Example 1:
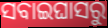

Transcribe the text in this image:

ସବାଇଘାସରୁ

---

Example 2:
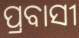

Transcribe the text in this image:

ପ୍ରବାସୀ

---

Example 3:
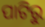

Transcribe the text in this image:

ପାଟିରୁ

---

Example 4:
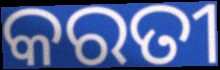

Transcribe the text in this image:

କରତୀ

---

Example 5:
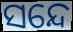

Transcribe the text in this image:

ସନ୍ଦେ